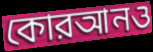
কোরআনও